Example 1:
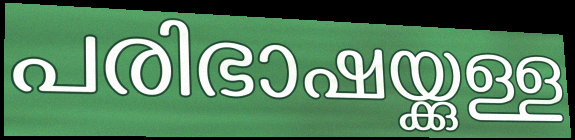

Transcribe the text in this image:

പരിഭാഷയ്ക്കുള്ള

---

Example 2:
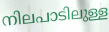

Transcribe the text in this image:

നിലപാടിലുള്ള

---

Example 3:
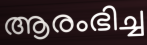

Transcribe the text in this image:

ആരംഭിച്ച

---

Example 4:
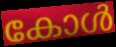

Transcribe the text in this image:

കോൾ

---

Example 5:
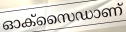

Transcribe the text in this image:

ഓക്സൈഡാണ്